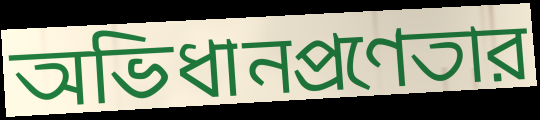
অভিধানপ্রণেতার